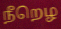
நீறெழ